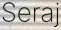
Seraj